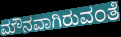
ಮೌನವಾಗಿರುವಂತೆ